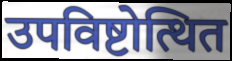
उपविष्टोत्थित